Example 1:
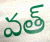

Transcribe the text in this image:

వత్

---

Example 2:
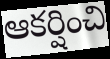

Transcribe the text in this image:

ఆకర్షించి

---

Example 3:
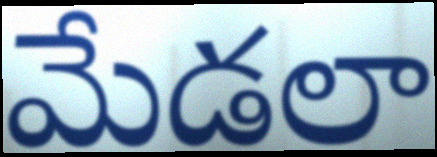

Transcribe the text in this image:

మేడలా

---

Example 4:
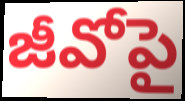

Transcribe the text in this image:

జీవోపై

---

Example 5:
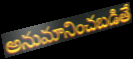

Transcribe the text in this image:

అనుమానించబడితే